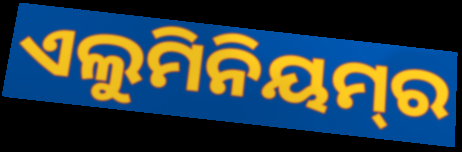
ଏଲୁମିନିୟମ୍‌ର